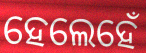
ହେଲେହେଁ